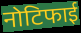
नोटिफाई